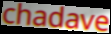
chadave